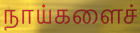
நாய்களைச்